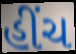
હીંચ